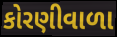
કોરણીવાળા